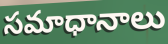
సమాధానాలు